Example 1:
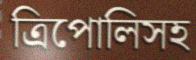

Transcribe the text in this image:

ত্রিপোলিসহ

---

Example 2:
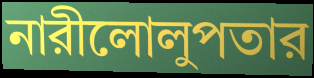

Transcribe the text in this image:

নারীলোলুপতার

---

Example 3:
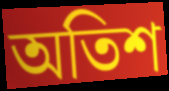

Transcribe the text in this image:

অতিশ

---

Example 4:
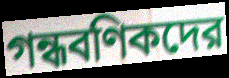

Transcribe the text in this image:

গন্ধবণিকদের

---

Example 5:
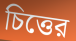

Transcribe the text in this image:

চিত্তের